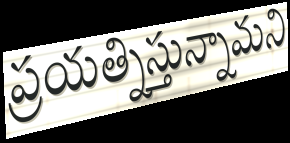
ప్రయత్నిస్తున్నామని